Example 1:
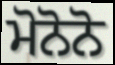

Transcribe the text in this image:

ਮੋਨੋਨੋ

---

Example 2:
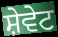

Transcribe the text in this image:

ਸ਼ੇਵੇਟ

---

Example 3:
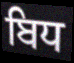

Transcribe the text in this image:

ਬਿਧ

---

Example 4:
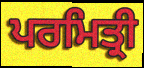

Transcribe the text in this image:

ਪਰਮਿਤ੍ਰੀ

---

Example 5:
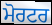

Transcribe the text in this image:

ਮੋਰਟਰ